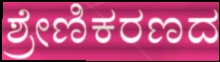
ಶ್ರೇಣಿಕರಣದ